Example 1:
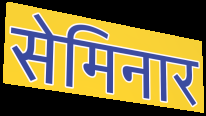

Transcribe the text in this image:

सेमिनार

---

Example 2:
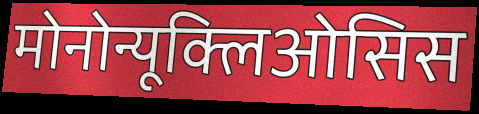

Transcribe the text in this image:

मोनोन्यूक्लिओसिस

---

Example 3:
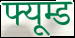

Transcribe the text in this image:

फ्यूम्ड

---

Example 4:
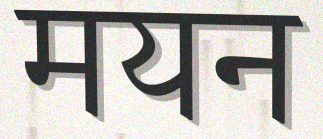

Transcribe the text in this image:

मयन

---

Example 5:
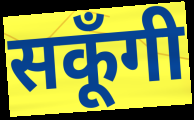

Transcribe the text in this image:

सकूँगी